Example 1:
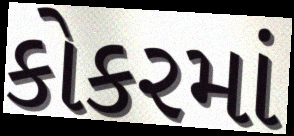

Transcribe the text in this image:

કોકરમાં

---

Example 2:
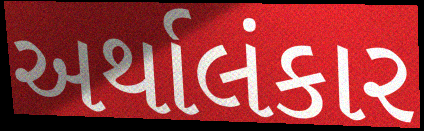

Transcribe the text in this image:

અર્થાલંકાર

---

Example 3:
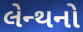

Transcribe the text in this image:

લેન્થનો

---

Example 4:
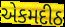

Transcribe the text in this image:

એકમદીઠ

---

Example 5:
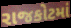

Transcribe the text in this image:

રાજકોટમાં